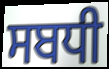
ਸਬਧੀ